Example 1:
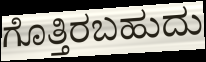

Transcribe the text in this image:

ಗೊತ್ತಿರಬಹುದು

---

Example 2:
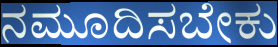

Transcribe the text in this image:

ನಮೂದಿಸಬೇಕು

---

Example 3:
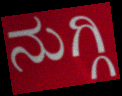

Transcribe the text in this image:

ನುಗ್ಗಿ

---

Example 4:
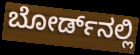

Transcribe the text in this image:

ಬೋರ್ಡ್‌ನಲ್ಲಿ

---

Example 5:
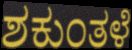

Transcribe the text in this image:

ಶಕುಂತಳೆ